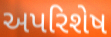
અપરિશેષ